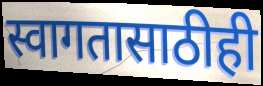
स्वागतासाठीही